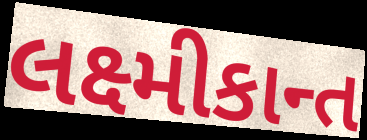
લક્ષ્મીકાન્ત